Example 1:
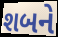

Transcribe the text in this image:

શબને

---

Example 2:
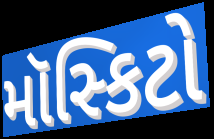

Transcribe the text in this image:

મૉસ્કિટો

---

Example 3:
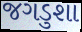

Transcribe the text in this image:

જગડુશા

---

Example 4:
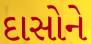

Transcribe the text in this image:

દાસોને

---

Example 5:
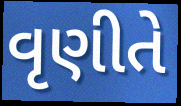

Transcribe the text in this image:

વૃણીતે